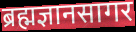
ब्रह्मज्ञानसागर